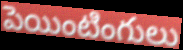
పెయింటింగులు